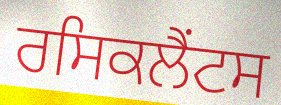
ਰਸਿਕਲੈਂਟਸ